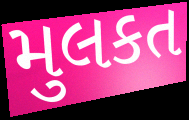
મુલકત